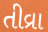
તીવ્રા